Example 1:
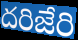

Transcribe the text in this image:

దరిజేరి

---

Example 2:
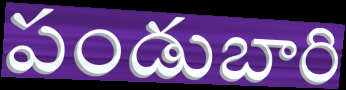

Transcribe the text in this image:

పండుబారి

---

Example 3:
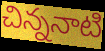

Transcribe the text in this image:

చిన్ననాటి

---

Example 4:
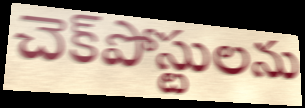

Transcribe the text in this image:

చెక్‌పోస్టులను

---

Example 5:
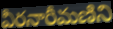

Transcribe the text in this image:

వీరనారీమణిని